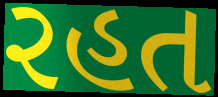
રહત